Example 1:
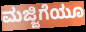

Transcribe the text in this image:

ಮಜ್ಜಿಗೆಯೂ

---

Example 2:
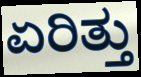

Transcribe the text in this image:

ಏರಿತ್ತು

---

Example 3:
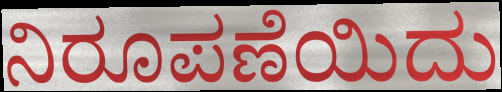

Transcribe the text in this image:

ನಿರೂಪಣೆಯಿದು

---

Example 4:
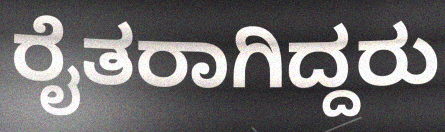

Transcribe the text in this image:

ರೈತರಾಗಿದ್ದರು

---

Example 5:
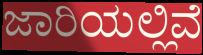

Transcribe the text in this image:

ಜಾರಿಯಲ್ಲಿವೆ